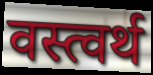
वस्त्वर्थ